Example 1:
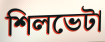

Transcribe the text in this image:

শিলভেটা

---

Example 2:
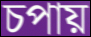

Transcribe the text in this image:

চপায়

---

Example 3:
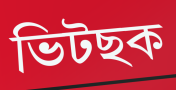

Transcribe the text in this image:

ভিটছক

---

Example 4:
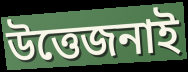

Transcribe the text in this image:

উত্তেজনাই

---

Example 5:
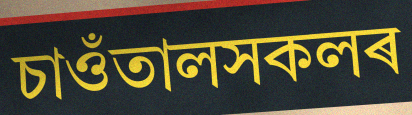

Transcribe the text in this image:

চাওঁতালসকলৰ